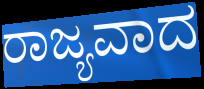
ರಾಜ್ಯವಾದ